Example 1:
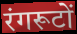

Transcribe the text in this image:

रंगरूटों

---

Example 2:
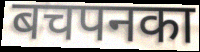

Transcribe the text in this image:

बचपनका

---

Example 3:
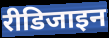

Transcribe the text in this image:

रीडिजाइन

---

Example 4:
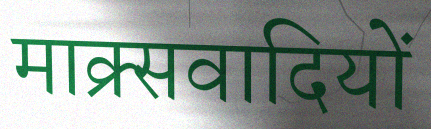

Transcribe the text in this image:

माक्र्सवादियों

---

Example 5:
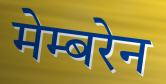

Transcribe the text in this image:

मेम्बरेन